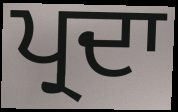
ਪ੍ਰਦਾ